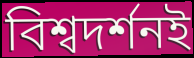
বিশ্বদর্শনই